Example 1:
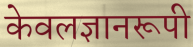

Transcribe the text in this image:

केवलज्ञानरूपी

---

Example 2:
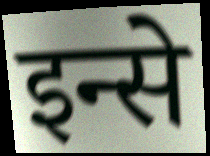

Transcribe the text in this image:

इन्से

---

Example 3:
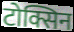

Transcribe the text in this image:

टोक्सिन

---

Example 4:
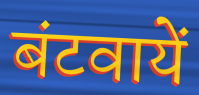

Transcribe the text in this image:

बंटवायें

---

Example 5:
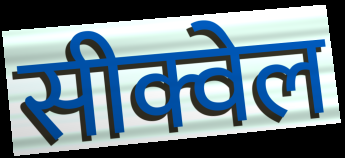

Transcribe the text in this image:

सीक्वेल